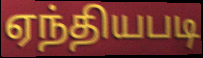
ஏந்தியபடி